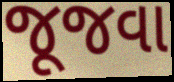
જૂજવા